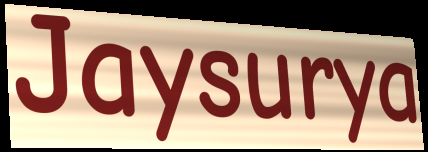
Jaysurya